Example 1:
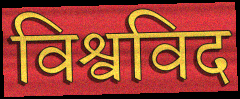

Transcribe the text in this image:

विश्वविद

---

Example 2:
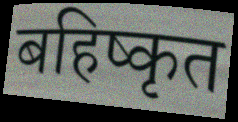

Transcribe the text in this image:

बहिष्कृत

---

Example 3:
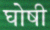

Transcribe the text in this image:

घोषी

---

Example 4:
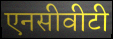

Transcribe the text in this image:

एनसीवीटी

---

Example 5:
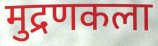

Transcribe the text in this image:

मुद्रणकला